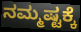
ನಮ್ಮಷ್ಟಕ್ಕೆ